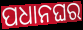
ପଧାନଘର